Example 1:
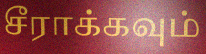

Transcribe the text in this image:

சீராக்கவும்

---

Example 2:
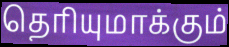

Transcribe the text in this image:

தெரியுமாக்கும்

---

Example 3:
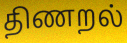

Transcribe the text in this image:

திணறல்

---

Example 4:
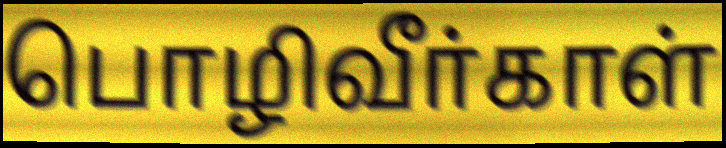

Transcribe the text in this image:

பொழிவீர்காள்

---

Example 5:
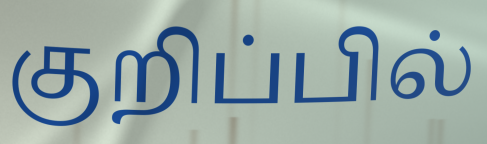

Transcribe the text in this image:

குறிப்பில்